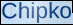
Chipko